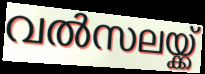
വൽസലയ്ക്ക്